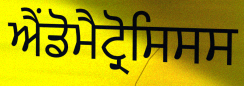
ਐਂਡੋਮੈਟ੍ਰੋਸਿਸਸ